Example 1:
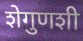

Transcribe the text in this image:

शेगुणशी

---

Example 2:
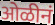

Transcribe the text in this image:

ओळीनं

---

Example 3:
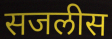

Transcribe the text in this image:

सजलीस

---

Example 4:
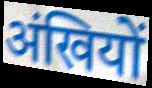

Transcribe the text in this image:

अंखियों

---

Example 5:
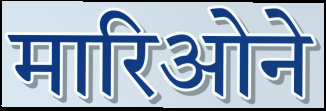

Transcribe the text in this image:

मारिओने